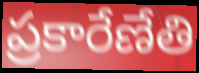
ప్రకారేణేతి